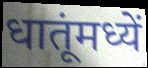
धातूंमध्यें